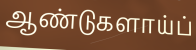
ஆண்டுகளாய்ப்